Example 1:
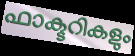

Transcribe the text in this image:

ഫാക്ടറികളും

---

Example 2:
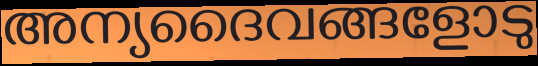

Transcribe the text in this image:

അന്യദൈവങ്ങളോടു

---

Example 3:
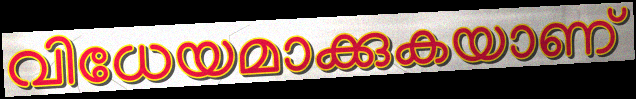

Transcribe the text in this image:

വിധേയമാക്കുകയാണ്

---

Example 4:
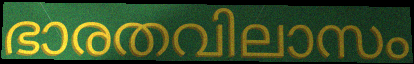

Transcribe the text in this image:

ഭാരതവിലാസം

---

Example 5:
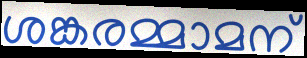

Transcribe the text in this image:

ശങ്കരമ്മാമന്